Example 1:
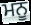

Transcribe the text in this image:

ਮਨੂ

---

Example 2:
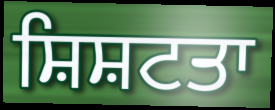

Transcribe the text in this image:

ਸ਼ਿਸ਼ਟਤਾ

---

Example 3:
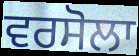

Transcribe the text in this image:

ਵਰਸੋਲਾ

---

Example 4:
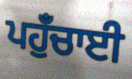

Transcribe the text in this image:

ਪਹੁਁਚਾਈ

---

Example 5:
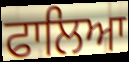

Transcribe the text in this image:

ਫਾਲਿਆ